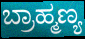
ಬ್ರಾಹ್ಮಣ್ಯ